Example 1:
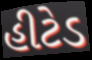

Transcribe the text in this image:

હીટેડ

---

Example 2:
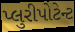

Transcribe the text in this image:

પ્લુરીપોટેન્ટ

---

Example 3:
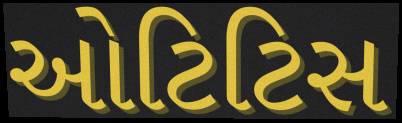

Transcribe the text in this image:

ઓટિટિસ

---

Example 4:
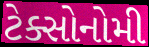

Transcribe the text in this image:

ટેક્સોનોમી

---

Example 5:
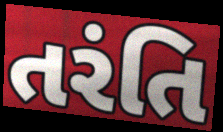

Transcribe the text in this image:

તરંતિ